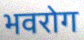
भवरोग